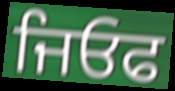
ਜਿਓਫ